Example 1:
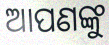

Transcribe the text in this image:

ଆପଣଙ୍କୁ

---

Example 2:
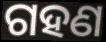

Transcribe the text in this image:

ଗହଣ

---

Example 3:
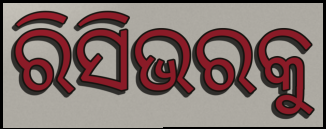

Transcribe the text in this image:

ରିସିଭରକୁ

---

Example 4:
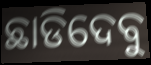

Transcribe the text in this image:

ଛାଡିଦେବୁ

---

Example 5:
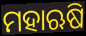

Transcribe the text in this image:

ମହାଋଷି